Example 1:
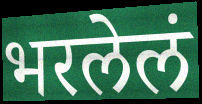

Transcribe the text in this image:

भरलेलं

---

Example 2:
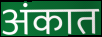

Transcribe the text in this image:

अंकात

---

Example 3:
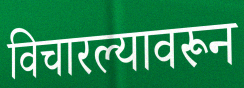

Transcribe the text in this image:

विचारल्यावरून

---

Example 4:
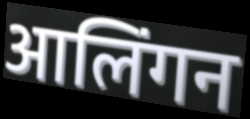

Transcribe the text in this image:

आलिंगन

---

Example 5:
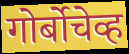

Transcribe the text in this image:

गोर्बोचेव्ह